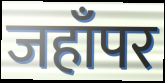
जहाँपर